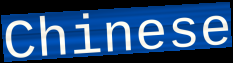
Chinese